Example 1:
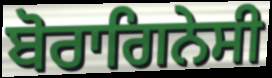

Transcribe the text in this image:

ਬੋਰਾਗਿਨੇਸੀ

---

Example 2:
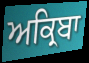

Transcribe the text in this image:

ਅਕ੍ਰਿਬਾ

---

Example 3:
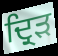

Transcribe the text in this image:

ਦ੍ਰਿਡ਼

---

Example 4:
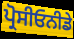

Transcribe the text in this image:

ਪ੍ਰੋਸੀਓਨੀਡੇ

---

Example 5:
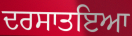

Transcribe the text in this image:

ਦਰਸਾਤਇਆ